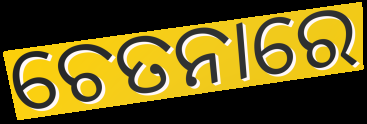
ଚେତନାରେ